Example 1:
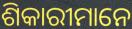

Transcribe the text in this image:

ଶିକାରୀମାନେ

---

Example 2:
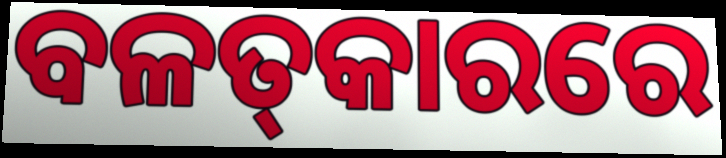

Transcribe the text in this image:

ବଳତ୍‌କାରରେ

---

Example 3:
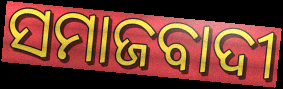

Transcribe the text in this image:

ସମାଜବାଦୀ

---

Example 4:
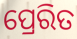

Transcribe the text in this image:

ପ୍ରେରିତ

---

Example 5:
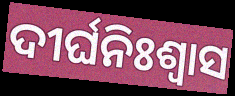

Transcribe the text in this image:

ଦୀର୍ଘନିଃଶ୍ବାସ